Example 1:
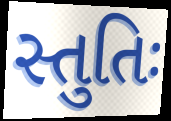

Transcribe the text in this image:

સ્તુતિઃ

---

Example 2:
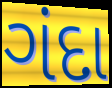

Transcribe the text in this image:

ગંદા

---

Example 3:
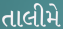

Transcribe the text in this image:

તાલીમે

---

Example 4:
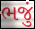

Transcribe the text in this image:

ભજું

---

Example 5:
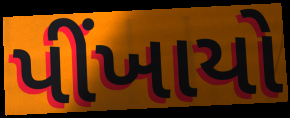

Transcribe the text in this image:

પીંખાયો